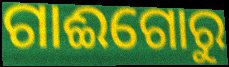
ଗାଈଗୋରୁ